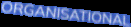
ORGANISATIONAL